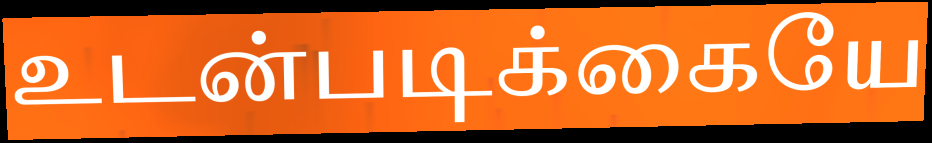
உடன்படிக்கையே